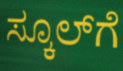
ಸ್ಕೂಲ್‌ಗೆ